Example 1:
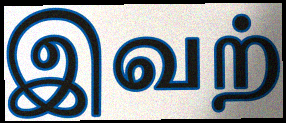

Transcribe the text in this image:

இவற்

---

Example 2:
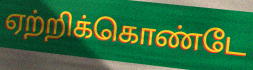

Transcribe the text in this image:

ஏற்றிக்கொண்டே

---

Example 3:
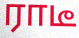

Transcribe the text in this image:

ராடீ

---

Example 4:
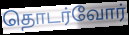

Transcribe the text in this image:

தொடர்வோர்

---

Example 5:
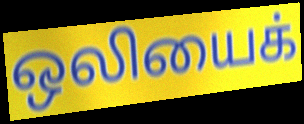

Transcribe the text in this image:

ஒலியைக்